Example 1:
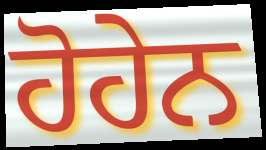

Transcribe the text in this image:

ਹੋਹੇਨ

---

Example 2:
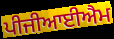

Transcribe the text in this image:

ਪੀਜੀਆਈਐਮ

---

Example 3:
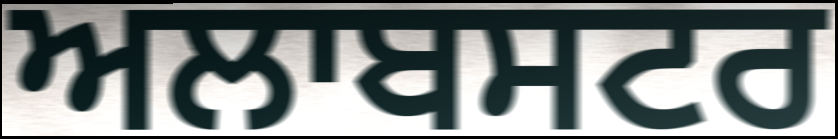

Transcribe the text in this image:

ਅਲਾਬਸਟਰ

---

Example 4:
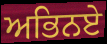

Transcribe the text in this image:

ਅਭਿਨਏ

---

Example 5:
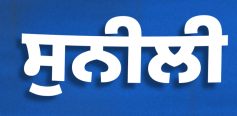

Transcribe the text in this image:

ਸੁਨੀਲੀ